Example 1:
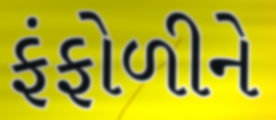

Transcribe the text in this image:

ફંફોળીને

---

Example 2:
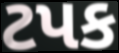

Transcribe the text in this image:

ટપક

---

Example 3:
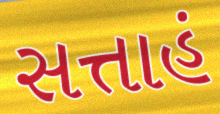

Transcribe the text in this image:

સત્તાહં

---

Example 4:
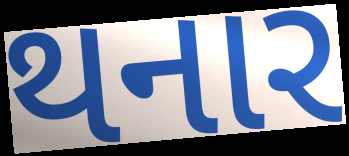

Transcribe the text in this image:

થનાર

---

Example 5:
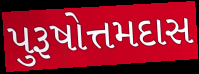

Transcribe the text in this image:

પુરૂષોત્તમદાસ